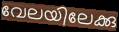
വേലയിലേക്കു